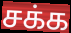
சக்க